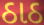
ઠાઠ